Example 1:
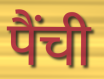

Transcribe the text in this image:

पैंची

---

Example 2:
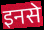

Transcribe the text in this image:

इनसे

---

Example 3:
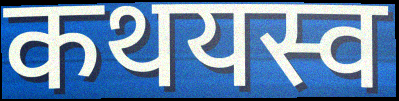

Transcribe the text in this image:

कथयस्व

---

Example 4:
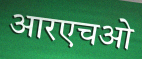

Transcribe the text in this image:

आरएचओ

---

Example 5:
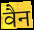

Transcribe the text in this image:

वैन